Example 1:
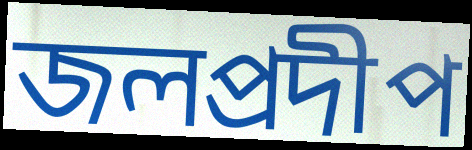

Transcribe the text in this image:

জলপ্রদীপ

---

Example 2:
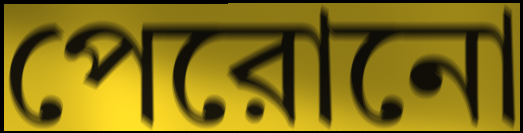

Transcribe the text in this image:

পেরোনো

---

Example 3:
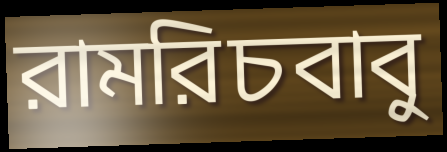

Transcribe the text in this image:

রামরিচবাবু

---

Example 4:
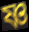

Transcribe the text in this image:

ষ্ণ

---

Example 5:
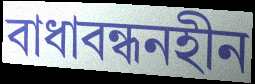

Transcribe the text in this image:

বাধাবন্ধনহীন